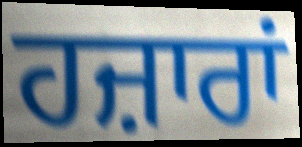
ਹਜ਼ਾਰਾਂ